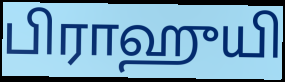
பிராஹுயி